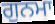
ਗੁਨਮਾ